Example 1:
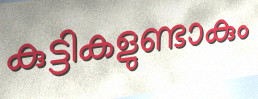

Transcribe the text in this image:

കുട്ടികളുണ്ടാകും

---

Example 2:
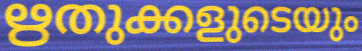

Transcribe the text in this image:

ഋതുക്കളുടെയും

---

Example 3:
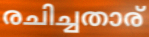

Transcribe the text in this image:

രചിച്ചതാര്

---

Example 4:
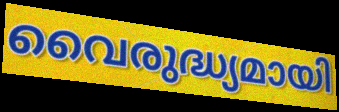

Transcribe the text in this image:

വൈരുദ്ധ്യമായി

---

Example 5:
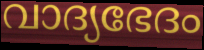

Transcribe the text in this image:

വാദ്യഭേദം